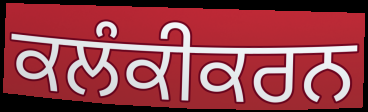
ਕਲੰਕੀਕਰਨ